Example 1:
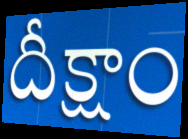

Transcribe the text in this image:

దీక్షాం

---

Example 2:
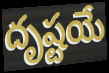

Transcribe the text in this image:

దృష్టయే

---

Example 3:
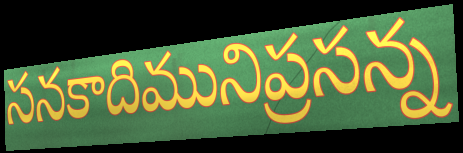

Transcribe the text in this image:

సనకాదిమునిప్రసన్న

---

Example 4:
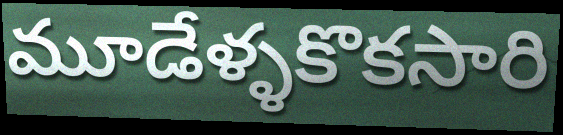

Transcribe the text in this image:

మూడేళ్ళకొకసారి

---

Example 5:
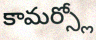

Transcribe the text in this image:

కామర్స్లో